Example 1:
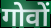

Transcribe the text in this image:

गोवों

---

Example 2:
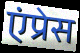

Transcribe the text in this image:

एंप्रेस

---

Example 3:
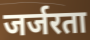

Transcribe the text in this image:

जर्जरता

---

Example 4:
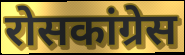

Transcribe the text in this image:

रोसकांग्रेस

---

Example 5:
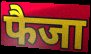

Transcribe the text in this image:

फैजा